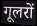
गूलरों